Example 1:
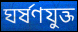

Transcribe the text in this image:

ঘর্ষণযুক্ত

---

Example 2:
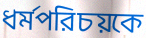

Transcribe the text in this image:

ধর্মপরিচয়কে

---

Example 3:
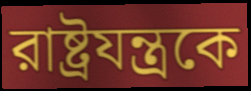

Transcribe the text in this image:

রাষ্ট্রযন্ত্রকে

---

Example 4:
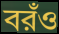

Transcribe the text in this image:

বরঁও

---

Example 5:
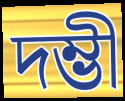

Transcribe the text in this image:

দম্ভী